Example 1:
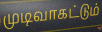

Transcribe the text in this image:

முடிவாகட்டும்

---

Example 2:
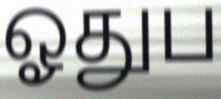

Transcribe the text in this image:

ஓதுப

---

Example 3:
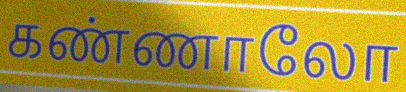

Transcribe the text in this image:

கண்ணாலோ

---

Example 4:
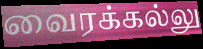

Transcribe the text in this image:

வைரக்கல்லு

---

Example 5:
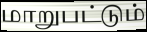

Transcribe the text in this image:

மாறுபட்டும்